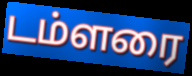
டம்ளரை